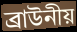
ব্ৰাউনীয়